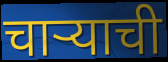
चाऱ्याची